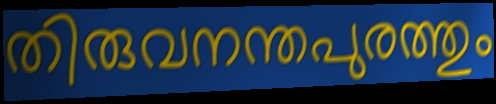
തിരുവനന്തപുരത്തും